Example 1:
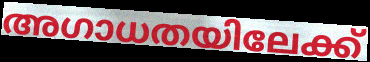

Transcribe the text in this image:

അഗാധതയിലേക്ക്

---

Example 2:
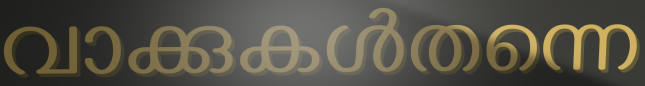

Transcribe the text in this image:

വാക്കുകൾതന്നെ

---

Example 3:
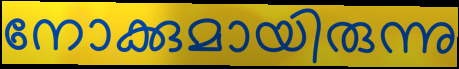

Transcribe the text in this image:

നോക്കുമായിരുന്നു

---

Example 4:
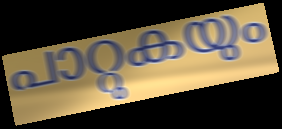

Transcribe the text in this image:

പാറ്റുകയും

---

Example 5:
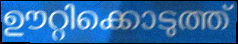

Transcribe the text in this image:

ഊറ്റിക്കൊടുത്ത്